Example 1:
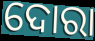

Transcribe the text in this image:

ଦୋରା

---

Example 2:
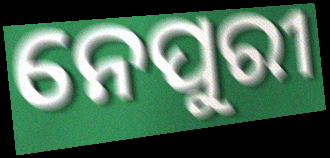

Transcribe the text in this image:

ନେପୁରୀ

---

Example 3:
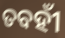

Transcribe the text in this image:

ତବହୀଁ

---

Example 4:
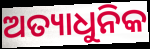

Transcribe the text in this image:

ଅତ୍ୟାଧୁନିକ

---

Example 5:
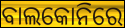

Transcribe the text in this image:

ବାଲକୋନିରେ